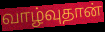
வாழ்வுதான்